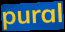
pural